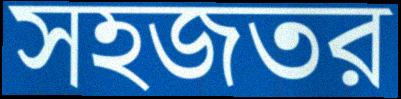
সহজতর